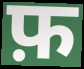
फ़